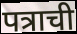
पत्राची